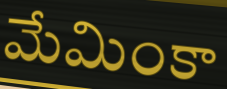
మేమింకా